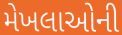
મેખલાઓની